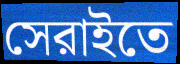
সেরাইতে